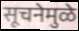
सूचनेमुळे